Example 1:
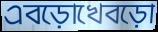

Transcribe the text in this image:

এবড়োখেবড়ো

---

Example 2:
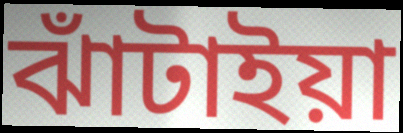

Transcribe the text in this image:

ঝাঁটাইয়া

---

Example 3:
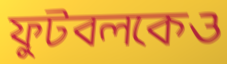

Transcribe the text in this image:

ফুটবলকেও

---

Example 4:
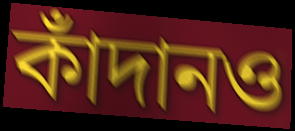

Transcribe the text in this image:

কাঁদানও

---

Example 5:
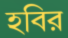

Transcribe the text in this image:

হবির